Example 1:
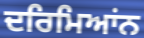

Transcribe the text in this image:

ਦਰਿਮਿਆਂਨ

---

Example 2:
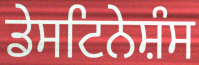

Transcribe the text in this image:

ਡੇਸਟਿਨੇਸ਼ੰਸ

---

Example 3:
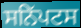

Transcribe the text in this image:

ਸਨਿੱਪਟਸ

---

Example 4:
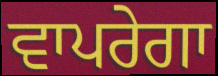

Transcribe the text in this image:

ਵਾਪਰੇਗਾ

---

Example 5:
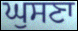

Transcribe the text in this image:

ਘੁਸਣਾ